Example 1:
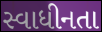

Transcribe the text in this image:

સ્વાધીનતા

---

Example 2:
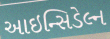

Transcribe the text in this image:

આઇન્સિડેલ્ન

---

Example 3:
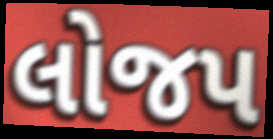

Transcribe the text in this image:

લોજપ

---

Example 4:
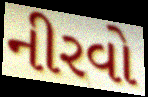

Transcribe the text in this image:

નીરવો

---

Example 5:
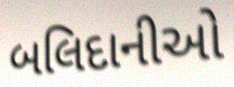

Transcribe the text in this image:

બલિદાનીઓ